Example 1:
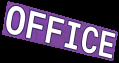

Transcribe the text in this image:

OFFICE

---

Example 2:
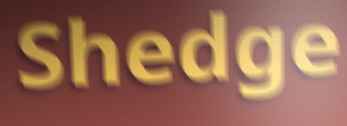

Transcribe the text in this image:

Shedge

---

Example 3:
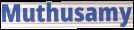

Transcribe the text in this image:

Muthusamy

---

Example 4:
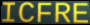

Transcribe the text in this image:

ICFRE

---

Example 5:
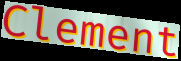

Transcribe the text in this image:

Clement